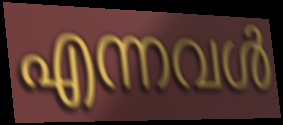
എന്നവൾ